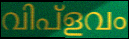
വിപ്ളവം